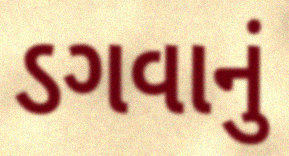
ડગવાનું